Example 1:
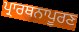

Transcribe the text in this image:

ਪ੍ਰਾਰਥਨਾਪੂਰਣ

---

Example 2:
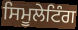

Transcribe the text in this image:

ਸਿਮੂਲੇਟਿੰਗ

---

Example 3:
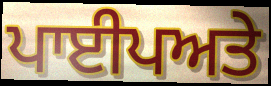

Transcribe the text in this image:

ਪਾਈਪਅਤੇ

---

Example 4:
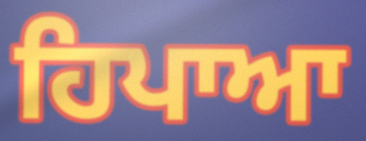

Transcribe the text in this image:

ਹਿਪਾਆ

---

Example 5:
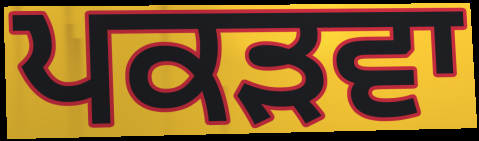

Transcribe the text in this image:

ਪਕੜਵਾ